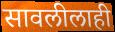
सावलीलाही